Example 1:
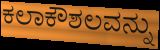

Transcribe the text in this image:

ಕಲಾಕೌಶಲವನ್ನು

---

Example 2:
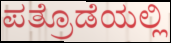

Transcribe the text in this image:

ಪತ್ರೊಡೆಯಲ್ಲಿ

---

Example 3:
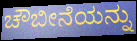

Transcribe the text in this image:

ಚೌಬೀನೆಯನ್ನು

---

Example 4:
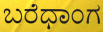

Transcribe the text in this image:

ಬರೆಧಾಂಗ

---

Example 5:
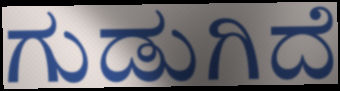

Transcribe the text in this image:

ಗುಡುಗಿದೆ